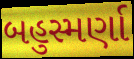
બહુસ્મર્ણા